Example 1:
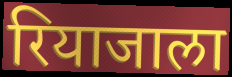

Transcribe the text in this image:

रियाजाला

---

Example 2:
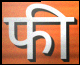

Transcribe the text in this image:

फी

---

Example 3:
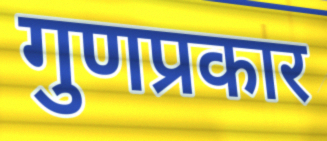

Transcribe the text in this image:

गुणप्रकार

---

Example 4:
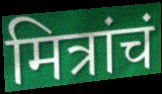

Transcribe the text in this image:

मित्रांचं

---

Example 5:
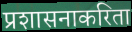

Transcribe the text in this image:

प्रशासनाकरिता